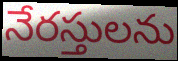
నేరస్తులను